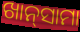
ଖାନ୍‌ସାମା